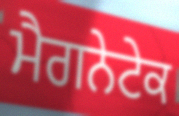
ਮੈਗਨੇਟੇਕ